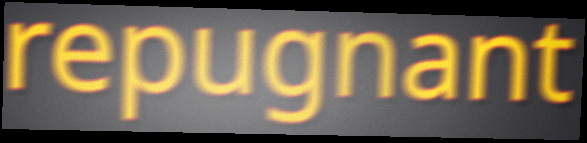
repugnant